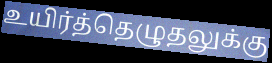
உயிர்த்தெழுதலுக்கு